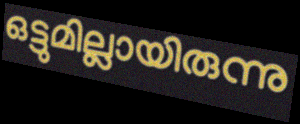
ഒട്ടുമില്ലായിരുന്നു